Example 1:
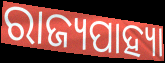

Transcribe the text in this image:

ରାଜ୍ୟପାହ୍ୟା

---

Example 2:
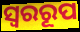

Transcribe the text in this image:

ସ୍ୱରରୂପ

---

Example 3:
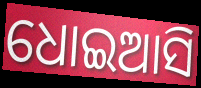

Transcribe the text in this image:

ଧୋଇଆସି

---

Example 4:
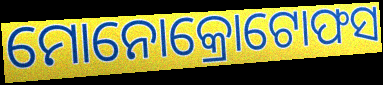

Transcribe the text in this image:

ମୋନୋକ୍ରୋଟୋଫସ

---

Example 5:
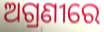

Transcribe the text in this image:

ଅଗ୍ରଣୀରେ